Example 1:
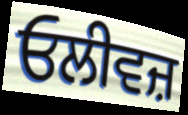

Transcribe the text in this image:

ਓਲੀਵਜ਼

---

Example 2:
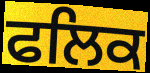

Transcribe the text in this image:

ਫਲਿਕ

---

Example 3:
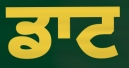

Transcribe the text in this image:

ਡਾਟ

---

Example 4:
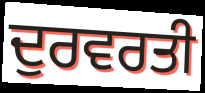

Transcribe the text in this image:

ਦੁਰਵਰਤੀ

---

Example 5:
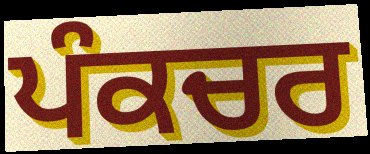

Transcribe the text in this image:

ਪੰਕਚਰ